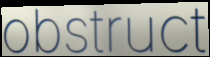
obstruct